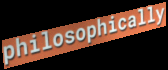
philosophically